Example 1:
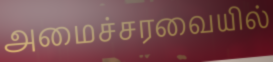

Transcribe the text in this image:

அமைச்சரவையில்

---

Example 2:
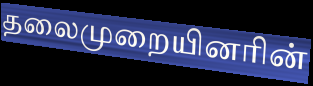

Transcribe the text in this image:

தலைமுறையினரின்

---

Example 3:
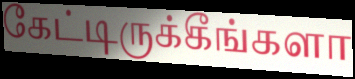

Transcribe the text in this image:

கேட்டிருக்கீங்களா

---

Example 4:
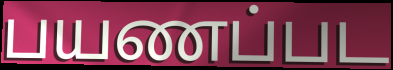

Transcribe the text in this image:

பயணப்பட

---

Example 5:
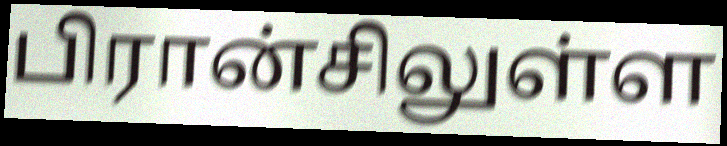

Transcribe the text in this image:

பிரான்சிலுள்ள